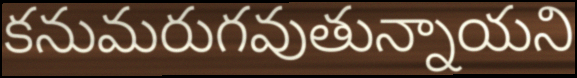
కనుమరుగవుతున్నాయని